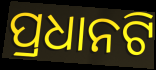
ପ୍ରଧାନଟି